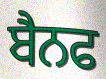
ਬੈਨਫ